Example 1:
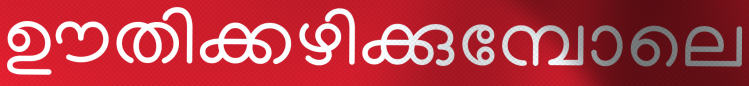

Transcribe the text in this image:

ഊതിക്കഴിക്കുമ്പോലെ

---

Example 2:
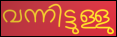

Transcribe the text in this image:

വന്നിട്ടുള്ളു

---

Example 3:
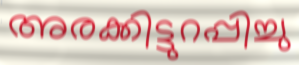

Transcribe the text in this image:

അരക്കിട്ടുറപ്പിച്ചു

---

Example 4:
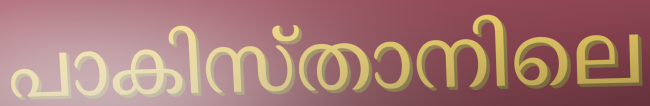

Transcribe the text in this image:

പാകിസ്താനിലെ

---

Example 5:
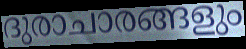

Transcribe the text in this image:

ദുരാചാരങ്ങളും